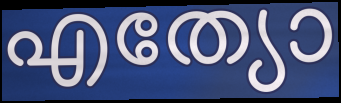
എത്യോ